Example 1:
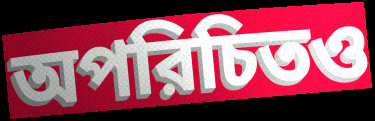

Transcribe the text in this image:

অপরিচিতও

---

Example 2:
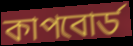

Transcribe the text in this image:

কাপবোর্ড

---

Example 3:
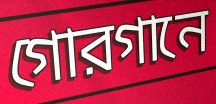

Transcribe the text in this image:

গোরগানে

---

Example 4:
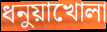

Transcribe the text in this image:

ধনুয়াখোলা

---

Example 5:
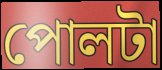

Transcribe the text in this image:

পোলটা